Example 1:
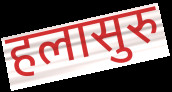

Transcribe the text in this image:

हलासुरु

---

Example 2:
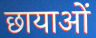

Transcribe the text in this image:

छायाओं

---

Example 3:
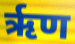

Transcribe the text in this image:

ऋृण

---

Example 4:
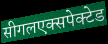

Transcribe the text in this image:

सीगलएक्सपेक्टेड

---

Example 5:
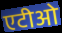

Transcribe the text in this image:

एटीओ